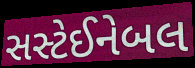
સસ્ટેઈનેબલ